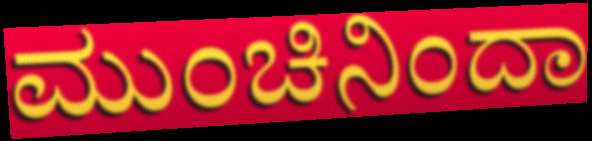
ಮುಂಚಿನಿಂದಾ